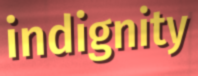
indignity